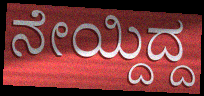
ನೇಯ್ದಿದ್ದ